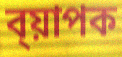
ব্য়াপক